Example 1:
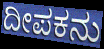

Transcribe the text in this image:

ದೀಪಕನು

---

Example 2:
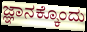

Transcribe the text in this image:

ಜ್ಞಾನಕ್ಕೊಂದು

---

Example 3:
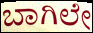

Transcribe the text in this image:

ಬಾಗಿಲೇ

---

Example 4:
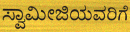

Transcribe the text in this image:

ಸ್ವಾಮೀಜಿಯವರಿಗೆ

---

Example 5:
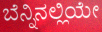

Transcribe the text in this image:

ಬೆನ್ನಿನಲ್ಲಿಯೇ